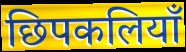
छिपकलियाँ